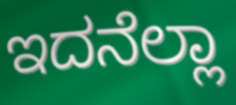
ಇದನೆಲ್ಲಾ